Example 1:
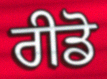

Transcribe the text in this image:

ਰੀਡੋ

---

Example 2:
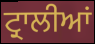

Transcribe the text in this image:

ਟ੍ਰਾਲੀਆਂ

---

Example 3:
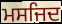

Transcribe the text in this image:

ਮਸਜਿਦ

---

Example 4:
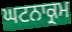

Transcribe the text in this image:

ਘਟਨਾਕ੍ਰਮ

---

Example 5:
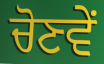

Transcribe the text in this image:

ਚੋਣਵੇਂ